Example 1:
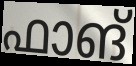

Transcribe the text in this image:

ഫാങ്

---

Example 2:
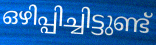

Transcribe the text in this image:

ഒഴിപ്പിച്ചിട്ടുണ്ട്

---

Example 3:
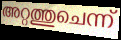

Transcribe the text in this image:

അറ്റത്തുചെന്ന്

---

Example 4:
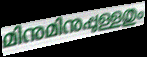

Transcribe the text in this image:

മിനുമിനുപ്പുള്ളതും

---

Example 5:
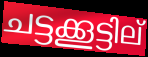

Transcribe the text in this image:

ചട്ടക്കൂട്ടില്